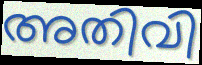
അതിവി